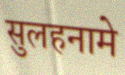
सुलहनामे